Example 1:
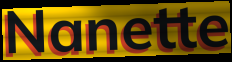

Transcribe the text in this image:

Nanette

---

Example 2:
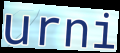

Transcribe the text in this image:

urni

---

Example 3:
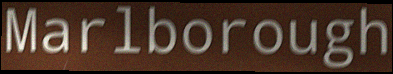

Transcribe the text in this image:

Marlborough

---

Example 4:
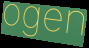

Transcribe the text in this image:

ogen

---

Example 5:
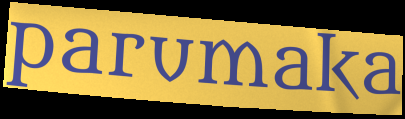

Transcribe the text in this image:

parumaka